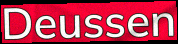
Deussen